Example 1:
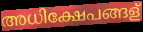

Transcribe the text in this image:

അധിക്ഷേപങ്ങള്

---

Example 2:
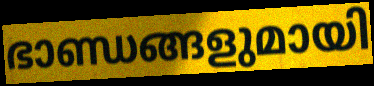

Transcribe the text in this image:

ഭാണ്ഡങ്ങളുമായി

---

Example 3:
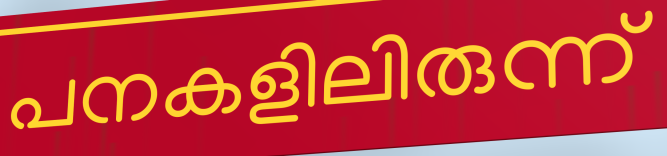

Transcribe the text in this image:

പനകളിലിരുന്ന്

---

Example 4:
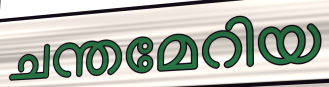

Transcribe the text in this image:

ചന്തമേറിയ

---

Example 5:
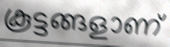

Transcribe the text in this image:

കൂട്ടങ്ങളാണ്